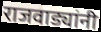
राजवाड्यांनी